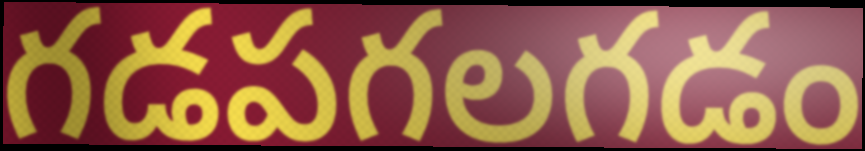
గడపగలగడం